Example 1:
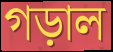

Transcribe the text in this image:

গড়াল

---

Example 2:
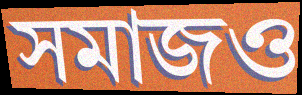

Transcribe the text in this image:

সমাজও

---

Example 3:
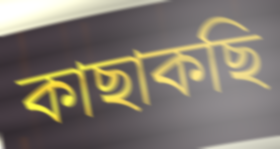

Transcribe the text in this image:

কাছাকছি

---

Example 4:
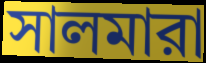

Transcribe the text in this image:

সালমারা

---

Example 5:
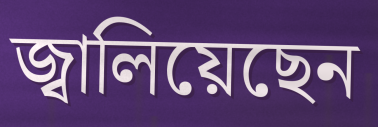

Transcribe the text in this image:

জ্বালিয়েছেন